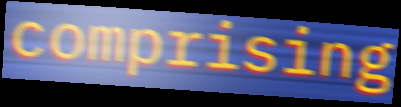
comprising